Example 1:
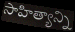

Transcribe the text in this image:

సాహిత్యాన్ని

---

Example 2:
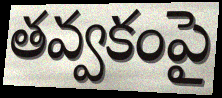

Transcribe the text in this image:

తవ్వకంపై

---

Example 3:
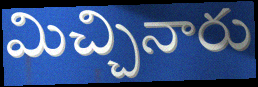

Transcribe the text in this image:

మిచ్చినారు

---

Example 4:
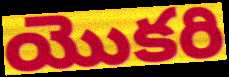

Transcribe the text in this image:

యొకరి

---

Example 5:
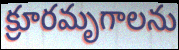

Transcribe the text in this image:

క్రూరమృగాలను